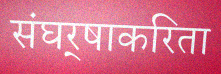
संघर्षाकरिता